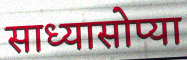
साध्यासोप्या